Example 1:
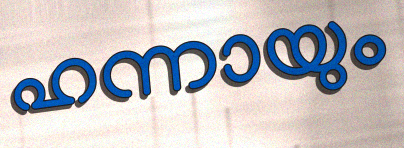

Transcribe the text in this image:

ഹന്നായും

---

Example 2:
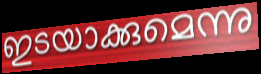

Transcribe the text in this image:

ഇടയാക്കുമെന്നു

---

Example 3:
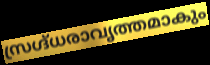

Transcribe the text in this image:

സ്രഗ്ദ്ധരാവൃത്തമാകും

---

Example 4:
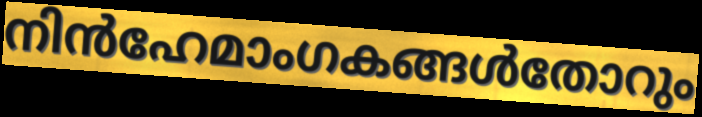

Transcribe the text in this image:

നിൻഹേമാംഗകങ്ങൾതോറും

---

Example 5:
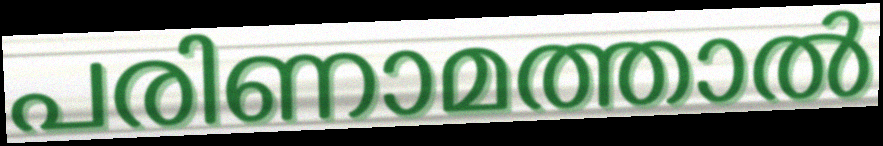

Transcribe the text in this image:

പരിണാമത്താൽ